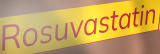
Rosuvastatin